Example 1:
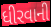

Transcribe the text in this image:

ધીરવાની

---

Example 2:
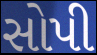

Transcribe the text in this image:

સોપી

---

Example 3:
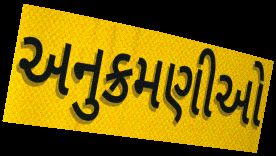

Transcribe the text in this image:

અનુક્રમણીઓ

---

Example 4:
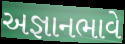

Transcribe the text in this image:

અજ્ઞાનભાવે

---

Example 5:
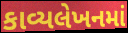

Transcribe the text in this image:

કાવ્યલેખનમાં